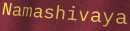
Namashivaya